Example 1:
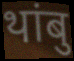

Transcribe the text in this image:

थांबु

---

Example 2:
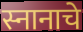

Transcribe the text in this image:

स्नानाचे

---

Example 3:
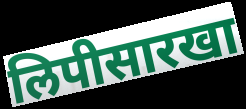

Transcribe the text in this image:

लिपीसारखा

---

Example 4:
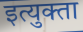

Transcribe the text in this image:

इत्युक्ता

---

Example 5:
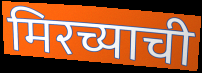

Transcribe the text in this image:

मिरच्याची